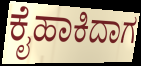
ಕೈಹಾಕಿದಾಗ